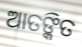
ଆତଙ୍କିତ